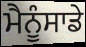
ਮੈਨੂੰਸਾਡੇ